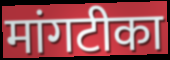
मांगटीका